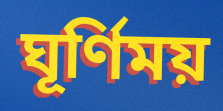
ঘূর্ণিময়